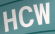
HCW